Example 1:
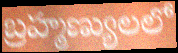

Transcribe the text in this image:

బ్రహ్మణ్యులలో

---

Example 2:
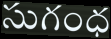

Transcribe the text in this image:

సుగంధ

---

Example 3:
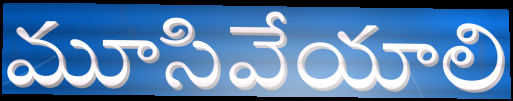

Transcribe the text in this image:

మూసివేయాలి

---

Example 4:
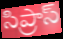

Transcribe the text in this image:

సిప్రాస్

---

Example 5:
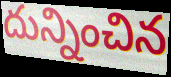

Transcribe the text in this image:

దున్నించిన